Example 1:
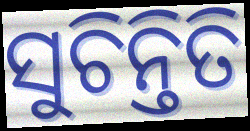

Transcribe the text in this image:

ସୁଚିନ୍ତିତି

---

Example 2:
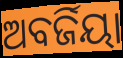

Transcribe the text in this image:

ଅବର୍ଜିୟା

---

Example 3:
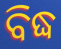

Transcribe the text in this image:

ବିଦ୍ଧ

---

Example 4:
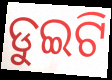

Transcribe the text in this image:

ଡୁଇଟି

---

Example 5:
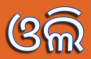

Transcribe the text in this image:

ଓଲି